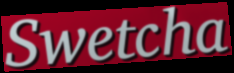
Swetcha